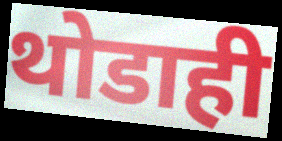
थोडाही